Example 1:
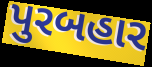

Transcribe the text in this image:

પુરબહાર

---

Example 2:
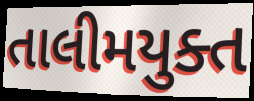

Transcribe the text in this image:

તાલીમયુક્ત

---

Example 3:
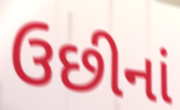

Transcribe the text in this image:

ઉછીનાં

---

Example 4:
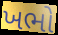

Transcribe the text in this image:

ખભો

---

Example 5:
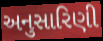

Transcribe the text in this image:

અનુસારિણી